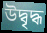
উদ্বৃদ্ধ